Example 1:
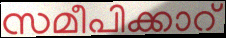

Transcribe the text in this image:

സമീപിക്കാറ്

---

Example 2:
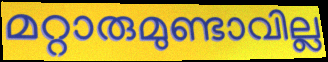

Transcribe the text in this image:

മറ്റാരുമുണ്ടാവില്ല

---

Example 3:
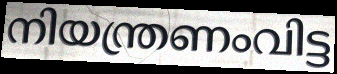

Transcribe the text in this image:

നിയന്ത്രണംവിട്ട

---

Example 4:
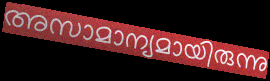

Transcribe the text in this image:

അസാമാന്യമായിരുന്നു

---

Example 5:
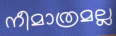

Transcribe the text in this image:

നീമാത്രമല്ല